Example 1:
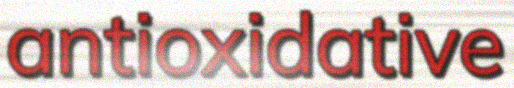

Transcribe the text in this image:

antioxidative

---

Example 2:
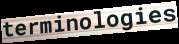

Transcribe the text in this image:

terminologies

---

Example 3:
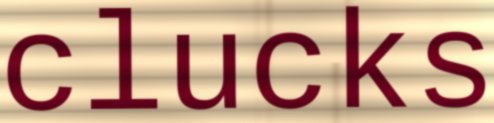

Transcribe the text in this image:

clucks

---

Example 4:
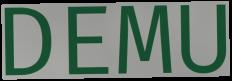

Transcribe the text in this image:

DEMU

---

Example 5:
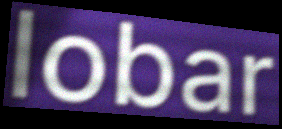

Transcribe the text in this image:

lobar